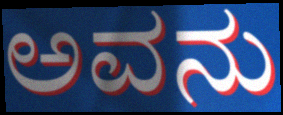
ಅವನು